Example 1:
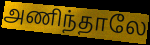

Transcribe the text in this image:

அணிந்தாலே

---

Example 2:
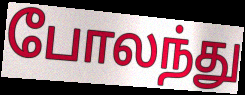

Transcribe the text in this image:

போலந்து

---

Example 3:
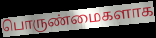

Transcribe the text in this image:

பொருண்மைகளாக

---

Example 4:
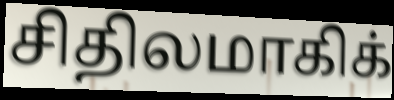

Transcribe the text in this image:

சிதிலமாகிக்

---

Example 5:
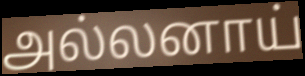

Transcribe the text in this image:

அல்லனாய்